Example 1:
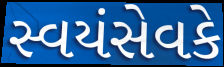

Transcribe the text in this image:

સ્વયંસેવકે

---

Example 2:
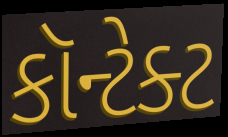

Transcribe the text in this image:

કૉન્ટેક્ટ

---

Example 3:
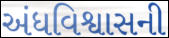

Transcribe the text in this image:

અંધવિશ્વાસની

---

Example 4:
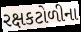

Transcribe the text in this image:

રક્ષકટોળીના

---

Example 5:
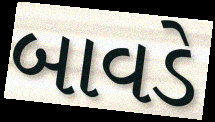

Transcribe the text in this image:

બાવડે